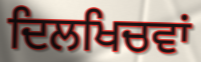
ਦਿਲਖਿਚਵਾਂ